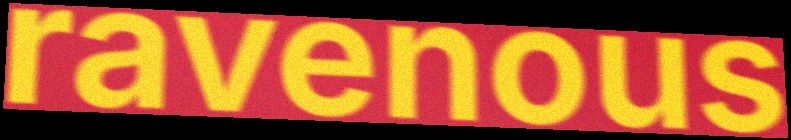
ravenous